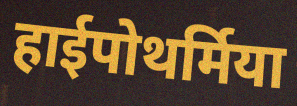
हाईपोथर्मिया